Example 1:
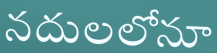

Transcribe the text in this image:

నదులలోనూ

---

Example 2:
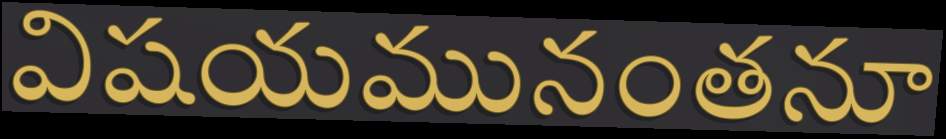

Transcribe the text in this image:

విషయమునంతనూ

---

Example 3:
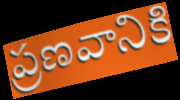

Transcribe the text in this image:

ప్రణవానికి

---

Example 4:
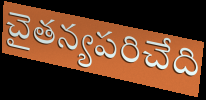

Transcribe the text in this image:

చైతన్యపరిచేది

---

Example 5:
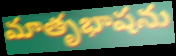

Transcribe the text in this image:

మాతృభాషను